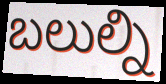
బలుల్ని